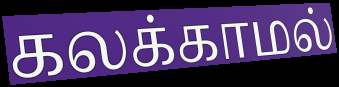
கலக்காமல்